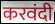
करवंदी